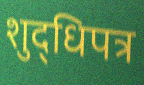
शुद्धिपत्र